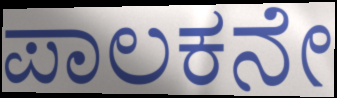
ಪಾಲಕನೇ